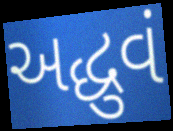
અદ્ધુવં